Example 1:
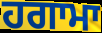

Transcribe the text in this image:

ਹਗਾਮਾ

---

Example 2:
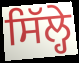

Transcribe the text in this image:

ਸਿੱਲ੍ਹੇ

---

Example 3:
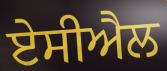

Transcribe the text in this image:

ਏਸੀਐਲ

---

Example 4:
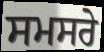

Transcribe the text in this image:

ਸਮਸਰੇ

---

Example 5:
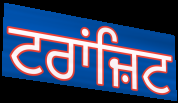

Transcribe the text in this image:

ਟਰਾਂਜ਼ਿਟ